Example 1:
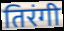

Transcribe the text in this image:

तिरंगी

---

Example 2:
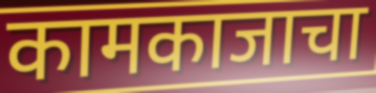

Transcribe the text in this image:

कामकाजाचा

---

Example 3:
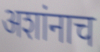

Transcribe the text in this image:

अशांनाच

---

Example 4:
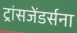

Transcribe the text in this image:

ट्रांसजेंडर्सना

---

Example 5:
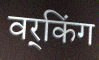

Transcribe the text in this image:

वर्किंग